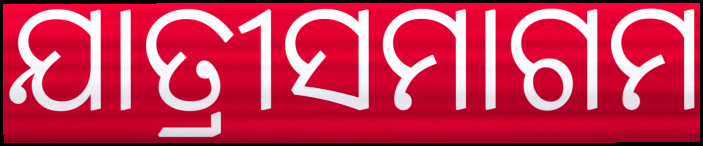
ଯାତ୍ରୀସମାଗମ